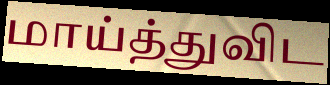
மாய்த்துவிட